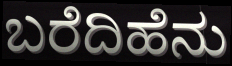
ಬರೆದಿಹೆನು